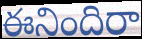
ఈనిందిరా